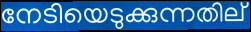
നേടിയെടുക്കുന്നതില്